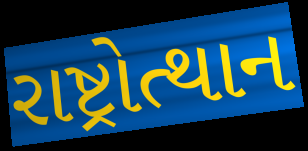
રાષ્ટ્રોત્થાન